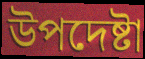
উপদেষ্টা